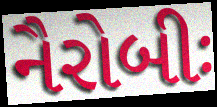
નૈરોબીઃ